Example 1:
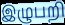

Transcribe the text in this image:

இழுபறி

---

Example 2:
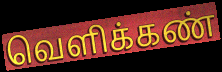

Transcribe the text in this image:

வெளிக்கண்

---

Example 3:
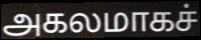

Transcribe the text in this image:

அகலமாகச்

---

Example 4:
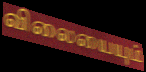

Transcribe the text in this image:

விலையையும்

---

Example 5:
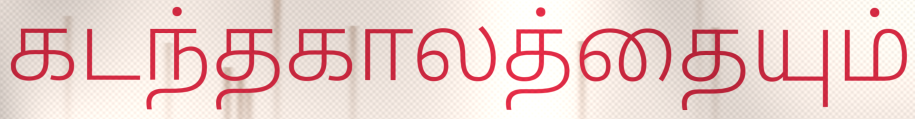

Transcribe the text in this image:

கடந்தகாலத்தையும்